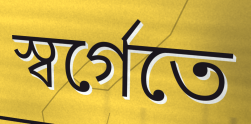
স্বর্গেতে